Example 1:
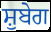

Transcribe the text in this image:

ਸ਼ੁਬੇਗ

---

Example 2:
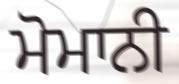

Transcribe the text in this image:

ਮੋਮਾਨੀ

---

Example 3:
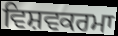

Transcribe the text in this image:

ਵਿਸ਼ਵਕਰਮਾ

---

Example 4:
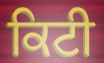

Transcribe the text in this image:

ਕਿਟੀ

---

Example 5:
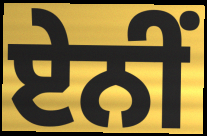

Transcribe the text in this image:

ਏਨੀਂ